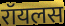
रॉयलस